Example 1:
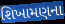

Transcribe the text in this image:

શિખામણના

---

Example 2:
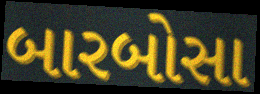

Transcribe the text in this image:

બારબોસા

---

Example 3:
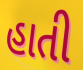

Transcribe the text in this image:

હાતી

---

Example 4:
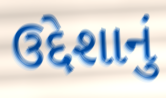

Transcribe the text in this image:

ઉદ્દેશાનું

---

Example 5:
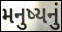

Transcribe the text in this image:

મનુષ્યનું